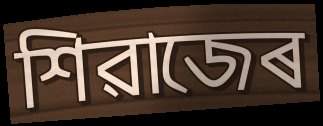
শিৱাজেৰ